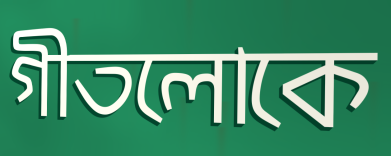
গীতলোকে